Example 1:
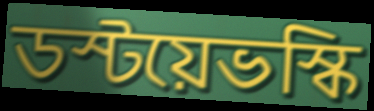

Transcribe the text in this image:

ডস্টয়েভস্কি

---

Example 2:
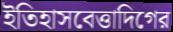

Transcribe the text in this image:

ইতিহাসবেত্তাদিগের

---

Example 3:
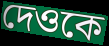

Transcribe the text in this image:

দেওকে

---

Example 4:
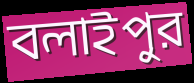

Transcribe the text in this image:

বলাইপুর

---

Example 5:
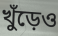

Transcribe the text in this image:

খুঁড়েও